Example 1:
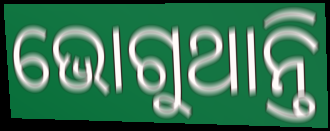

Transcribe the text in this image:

ଭୋଗୁଥାନ୍ତି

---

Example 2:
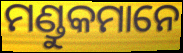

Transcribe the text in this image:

ମଣ୍ଡୁକମାନେ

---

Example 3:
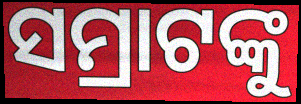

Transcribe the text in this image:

ସମ୍ରାଟଙ୍କୁ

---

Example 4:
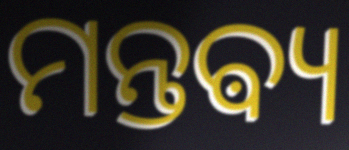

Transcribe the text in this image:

ମନ୍ତଵ୍ୟ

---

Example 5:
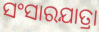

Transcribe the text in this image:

ସଂସାରଯାତ୍ରା